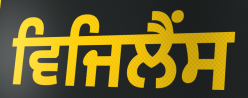
ਵਿਜਿਲੈਂਸ